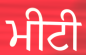
ਮੀਟੀ